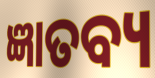
ଜ୍ଞାତବ୍ୟ